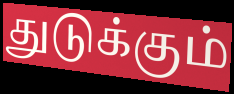
துடுக்கும்